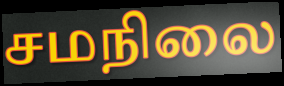
சமநிலை